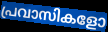
പ്രവാസികളോ